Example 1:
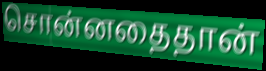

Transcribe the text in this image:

சொன்னதைதான்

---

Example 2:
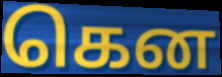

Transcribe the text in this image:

கென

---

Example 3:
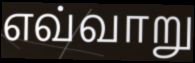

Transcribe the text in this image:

எவ்வாறு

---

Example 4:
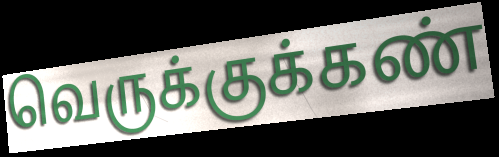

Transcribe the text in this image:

வெருக்குக்கண்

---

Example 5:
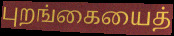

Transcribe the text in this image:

புறங்கையைத்